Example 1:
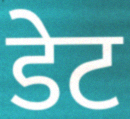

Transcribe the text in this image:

डेट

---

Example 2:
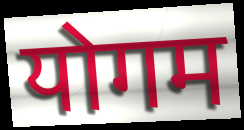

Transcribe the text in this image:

योगम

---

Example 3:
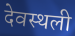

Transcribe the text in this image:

देवस्थली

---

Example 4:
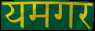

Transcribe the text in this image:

यमगर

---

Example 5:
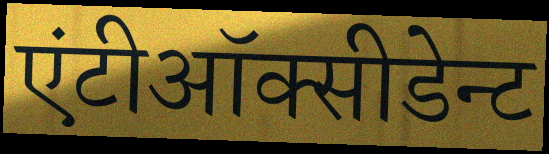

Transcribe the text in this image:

एंटीऑक्सीडेन्ट